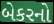
બેકરનો